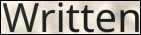
Written